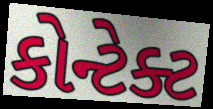
કોન્ટેક્ટ